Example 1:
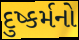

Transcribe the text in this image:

દુષ્કર્મનો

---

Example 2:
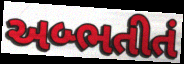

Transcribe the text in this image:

અબ્ભતીતં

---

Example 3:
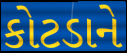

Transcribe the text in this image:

કોટડાને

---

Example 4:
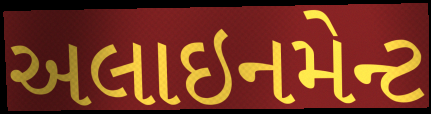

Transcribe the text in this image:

અલાઇનમેન્ટ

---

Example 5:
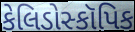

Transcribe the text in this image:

કેલિડોસ્કૉપિક